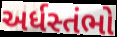
અર્ધસ્તંભો